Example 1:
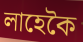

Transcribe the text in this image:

লাহেকৈ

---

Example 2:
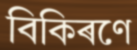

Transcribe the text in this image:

বিকিৰণে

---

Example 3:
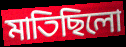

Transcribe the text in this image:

মাতিছিলো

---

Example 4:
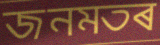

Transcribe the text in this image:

জনমতৰ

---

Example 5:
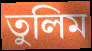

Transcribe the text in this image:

তুলিম